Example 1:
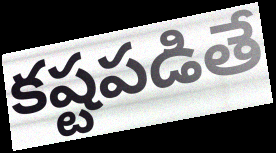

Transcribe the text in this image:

కష్టపడితే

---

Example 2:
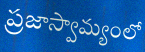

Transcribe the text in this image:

ప్రజాస్వామ్యంలో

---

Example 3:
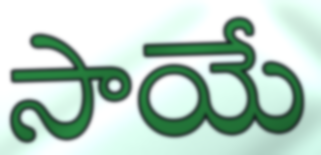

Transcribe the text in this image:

సాయే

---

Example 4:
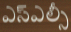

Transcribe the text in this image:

ఎస్ఎల్సీ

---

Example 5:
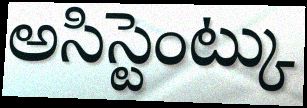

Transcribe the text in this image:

అసిస్టెంట్కు